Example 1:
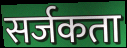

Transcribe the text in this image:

सर्जकता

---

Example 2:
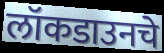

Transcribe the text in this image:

लॉकडाउनचे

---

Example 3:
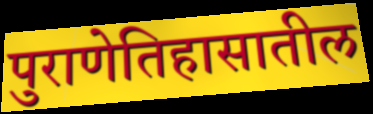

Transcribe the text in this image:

पुराणेतिहासातील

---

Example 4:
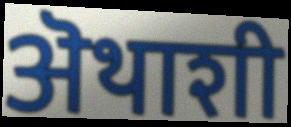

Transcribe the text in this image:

ऄथाशी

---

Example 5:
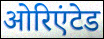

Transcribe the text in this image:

ओरिएंटेड